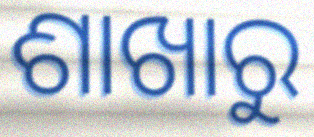
ଶାଖାରୁ